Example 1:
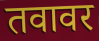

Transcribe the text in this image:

तवावर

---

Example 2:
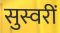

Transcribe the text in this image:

सुस्वरीं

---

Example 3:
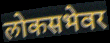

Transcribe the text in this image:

लोकसभेवर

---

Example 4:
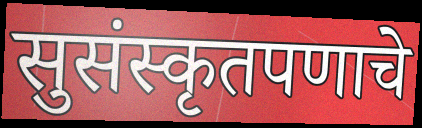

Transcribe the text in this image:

सुसंस्कृतपणाचे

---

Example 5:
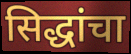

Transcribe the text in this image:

सिद्धांचा